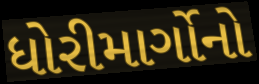
ધોરીમાર્ગોનો